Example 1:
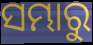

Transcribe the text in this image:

ସମ୍ଭାରୁ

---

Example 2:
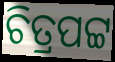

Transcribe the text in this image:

ଚିତ୍ରପଟ୍ଟ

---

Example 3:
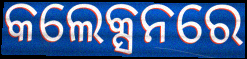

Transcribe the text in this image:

କଲେକ୍ସନରେ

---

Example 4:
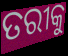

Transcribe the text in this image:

ତରୀକୁ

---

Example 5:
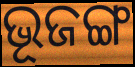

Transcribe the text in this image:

ଭୂଜଙ୍ଗ